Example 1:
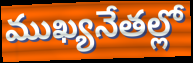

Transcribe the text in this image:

ముఖ్యనేతల్లో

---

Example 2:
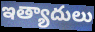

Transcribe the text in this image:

ఇత్యాదులు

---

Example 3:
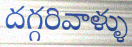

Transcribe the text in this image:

దగ్గరివాళ్ళు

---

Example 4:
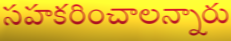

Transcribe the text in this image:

సహకరించాలన్నారు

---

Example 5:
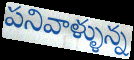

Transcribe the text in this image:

పనివాళ్ళున్న